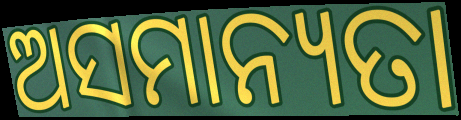
ଅସମାନ୍ୟତା